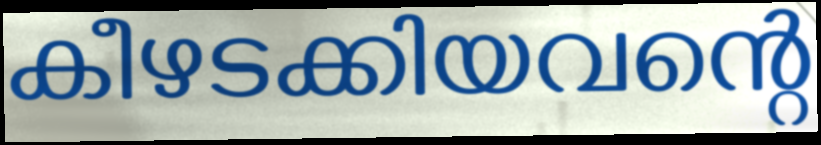
കീഴടക്കിയവന്റെ